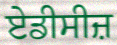
ਏਡੀਸੀਜ਼